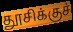
தூசிக்குச்